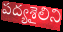
పద్యశైలిని